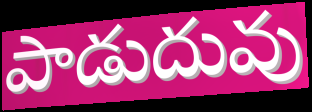
పాడుదువు